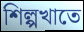
শিল্পখাতে